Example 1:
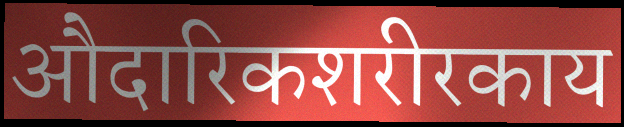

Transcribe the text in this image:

औदारिकशरीरकाय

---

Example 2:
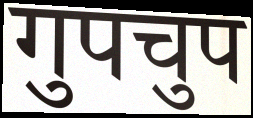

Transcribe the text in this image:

गुपचुप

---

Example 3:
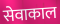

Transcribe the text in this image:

सेवाकाल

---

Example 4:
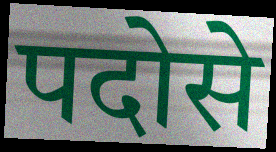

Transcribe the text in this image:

पदोसे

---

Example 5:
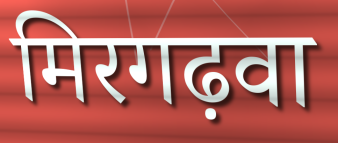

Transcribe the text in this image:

मिरगढ़वा